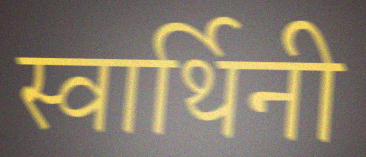
स्वार्थिनी